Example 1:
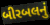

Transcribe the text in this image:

બીરબલનું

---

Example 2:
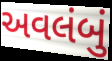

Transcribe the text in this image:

અવલંબું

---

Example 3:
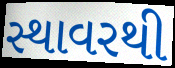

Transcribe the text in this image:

સ્થાવરથી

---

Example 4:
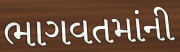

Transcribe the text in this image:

ભાગવતમાંની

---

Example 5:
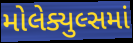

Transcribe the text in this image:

મોલેક્યુલ્સમાં